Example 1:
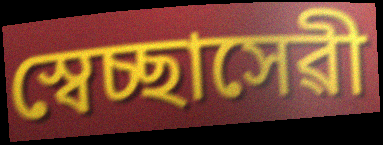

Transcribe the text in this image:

স্বেচ্ছাসেৱী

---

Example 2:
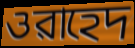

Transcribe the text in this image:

ওৱাহেদ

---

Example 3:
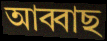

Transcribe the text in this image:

আব্বাছ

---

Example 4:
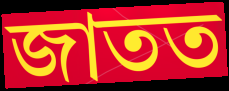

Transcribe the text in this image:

জাতত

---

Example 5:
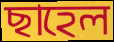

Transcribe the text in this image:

ছাহেল